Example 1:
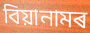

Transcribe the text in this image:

বিয়ানামৰ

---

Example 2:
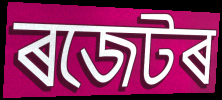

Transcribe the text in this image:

ৰজেটৰ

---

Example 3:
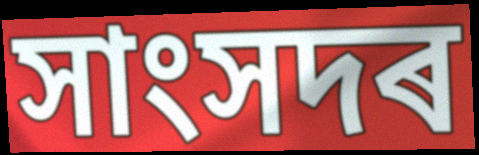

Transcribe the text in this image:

সাংসদৰ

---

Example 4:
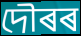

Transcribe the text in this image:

দৌৰৰ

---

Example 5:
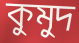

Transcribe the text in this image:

কুমুদ